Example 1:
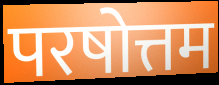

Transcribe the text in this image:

परषोत्तम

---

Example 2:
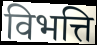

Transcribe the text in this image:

विभत्ति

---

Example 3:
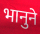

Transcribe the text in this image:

भानुने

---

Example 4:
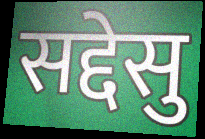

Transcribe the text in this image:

सद्देसु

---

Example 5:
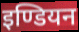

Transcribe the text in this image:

इण्डियन